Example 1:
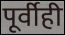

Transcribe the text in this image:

पूर्वीही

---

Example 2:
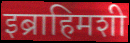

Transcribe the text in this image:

इब्राहिमशी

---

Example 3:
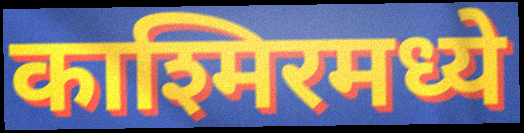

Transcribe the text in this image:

काश्मिरमध्ये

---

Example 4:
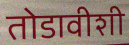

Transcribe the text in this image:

तोडावीशी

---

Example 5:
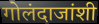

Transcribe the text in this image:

गोलंदाजांशी